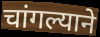
चांगल्याने